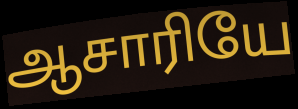
ஆசாரியே